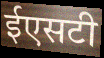
ईएसटी